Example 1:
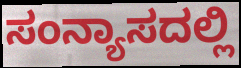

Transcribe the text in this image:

ಸಂನ್ಯಾಸದಲ್ಲಿ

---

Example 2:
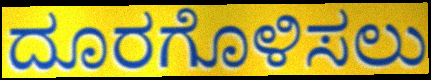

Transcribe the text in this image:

ದೂರಗೊಳಿಸಲು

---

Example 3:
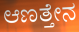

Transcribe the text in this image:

ಆಣತ್ತೇನ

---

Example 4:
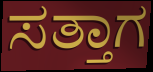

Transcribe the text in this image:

ಸತ್ತಾಗ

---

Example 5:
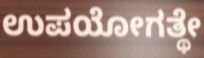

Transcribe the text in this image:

ಉಪಯೋಗತ್ಥೇ